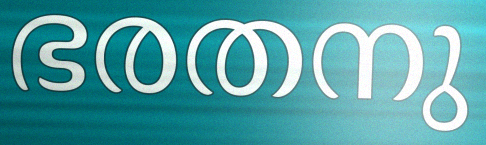
ഭരതനു